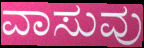
ವಾಸುವು